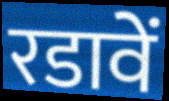
रडावें